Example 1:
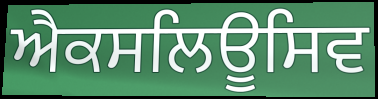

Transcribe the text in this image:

ਐਕਸਲਿਊਸਿਵ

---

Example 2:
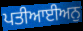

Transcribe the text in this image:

ਪਤੀਆਈਅਨੁ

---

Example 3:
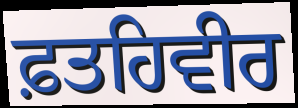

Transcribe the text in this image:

ਫ਼ਤਹਿਵੀਰ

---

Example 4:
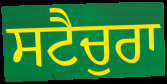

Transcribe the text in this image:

ਸਟੈਚੁਰਾ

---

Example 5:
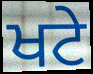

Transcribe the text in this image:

ਖਟੇ